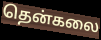
தென்கலை